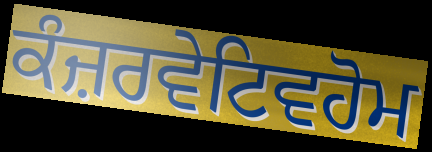
ਕੰਜ਼ਰਵੇਟਿਵਹੋਮ